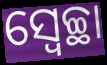
ସ୍ବେଚ୍ଛା